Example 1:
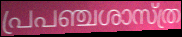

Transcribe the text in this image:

പ്രപഞ്ചശാസ്ത്ര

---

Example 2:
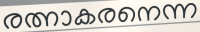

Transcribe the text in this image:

രത്നാകരനെന്ന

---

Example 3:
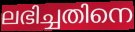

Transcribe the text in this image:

ലഭിച്ചതിനെ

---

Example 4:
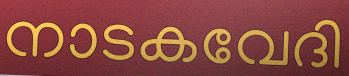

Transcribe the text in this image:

നാടകവേദി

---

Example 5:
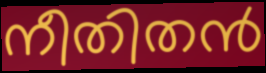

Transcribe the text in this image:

നീതിതൻ